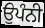
ਉਪੰਨੀ